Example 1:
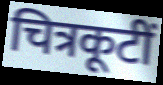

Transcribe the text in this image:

चित्रकूटीं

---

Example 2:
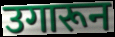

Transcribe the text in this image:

उगारून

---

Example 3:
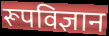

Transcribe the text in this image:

रूपविज्ञान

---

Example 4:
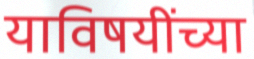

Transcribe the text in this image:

याविषयींच्या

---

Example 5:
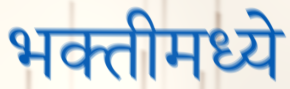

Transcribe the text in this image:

भक्तीमध्ये